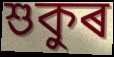
শুকুৰ